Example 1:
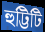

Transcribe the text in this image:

হুট্টিটি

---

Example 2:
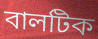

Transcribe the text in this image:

বালটিক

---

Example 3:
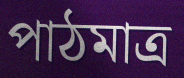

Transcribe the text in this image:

পাঠমাত্র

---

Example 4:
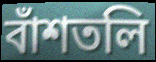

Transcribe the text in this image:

বাঁশতলি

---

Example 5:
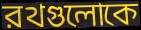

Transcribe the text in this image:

রথগুলোকে